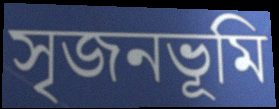
সৃজনভূমি